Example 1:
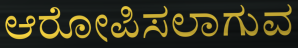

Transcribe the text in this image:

ಆರೋಪಿಸಲಾಗುವ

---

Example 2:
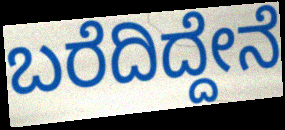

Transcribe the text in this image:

ಬರೆದಿದ್ದೇನೆ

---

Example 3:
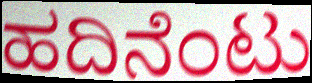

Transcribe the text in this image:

ಹದಿನೆಂಟು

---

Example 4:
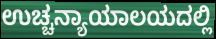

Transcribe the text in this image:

ಉಚ್ಚನ್ಯಾಯಾಲಯದಲ್ಲಿ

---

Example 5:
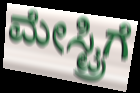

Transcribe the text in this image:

ಮೇಸ್ಟ್ರಿಗೆ